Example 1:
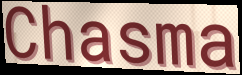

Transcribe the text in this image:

Chasma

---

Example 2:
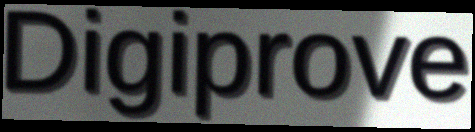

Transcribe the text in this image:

Digiprove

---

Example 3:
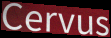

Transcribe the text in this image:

Cervus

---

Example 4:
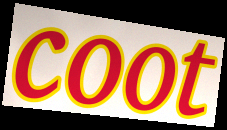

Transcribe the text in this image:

coot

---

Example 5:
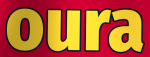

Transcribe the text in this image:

oura